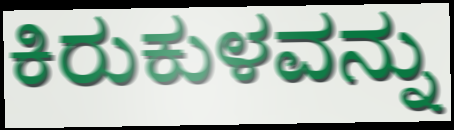
ಕಿರುಕುಳವನ್ನು